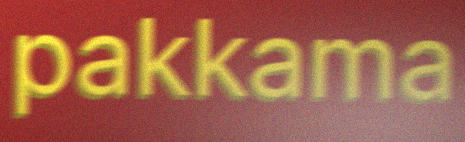
pakkama